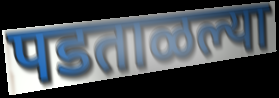
पडताळल्या